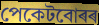
পেকেটবোৰৰ